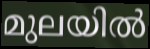
മുലയിൽ